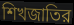
শিখজাতির